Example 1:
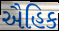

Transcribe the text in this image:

ઐહિક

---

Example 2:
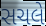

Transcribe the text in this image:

સચલે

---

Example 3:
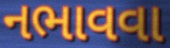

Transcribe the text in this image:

નભાવવા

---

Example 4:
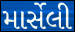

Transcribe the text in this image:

માર્સેલી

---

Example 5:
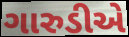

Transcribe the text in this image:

ગારુડીએ